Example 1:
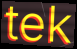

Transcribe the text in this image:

tek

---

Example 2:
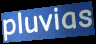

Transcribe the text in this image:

pluvias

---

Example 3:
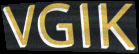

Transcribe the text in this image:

VGIK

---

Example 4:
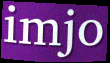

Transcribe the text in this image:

imjo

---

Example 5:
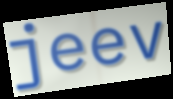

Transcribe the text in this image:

jeev